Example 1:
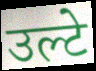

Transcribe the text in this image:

उल्टे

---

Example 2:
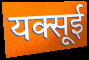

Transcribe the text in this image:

यक्सूई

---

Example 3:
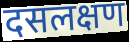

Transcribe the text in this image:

दसलक्षण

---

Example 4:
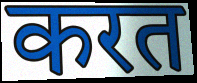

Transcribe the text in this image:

करत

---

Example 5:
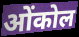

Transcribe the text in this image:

ओंकोल